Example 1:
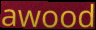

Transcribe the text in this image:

awood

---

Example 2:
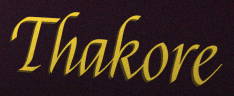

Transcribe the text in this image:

Thakore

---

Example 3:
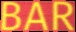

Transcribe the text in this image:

BAR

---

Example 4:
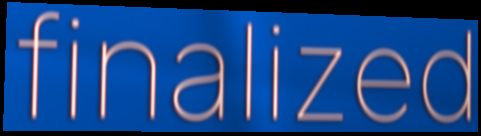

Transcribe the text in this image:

finalized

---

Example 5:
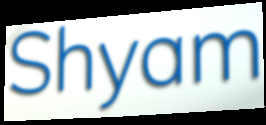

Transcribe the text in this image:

Shyam